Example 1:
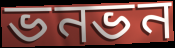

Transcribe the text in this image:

ভনভন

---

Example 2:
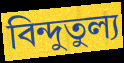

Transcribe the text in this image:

বিন্দুতুল্য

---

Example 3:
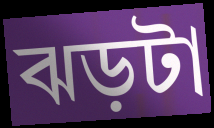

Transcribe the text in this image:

ঝড়টা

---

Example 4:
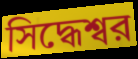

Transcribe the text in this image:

সিদ্ধেশ্বর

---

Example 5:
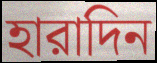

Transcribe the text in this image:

হারাদিন